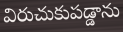
విరుచుకుపడ్డాను